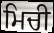
ਮਿਚੀ